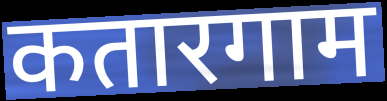
कतारगाम